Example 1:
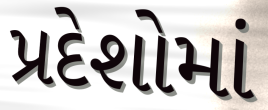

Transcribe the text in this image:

પ્રદેશોમાં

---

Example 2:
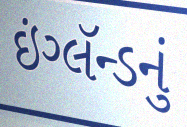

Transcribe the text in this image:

ઇંગ્લૅન્ડનું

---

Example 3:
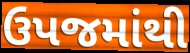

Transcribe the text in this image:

ઉપજમાંથી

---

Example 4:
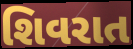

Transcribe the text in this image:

શિવરાત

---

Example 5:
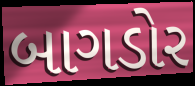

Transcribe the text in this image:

બાગડોર